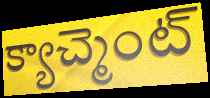
క్యాచ్మెంట్